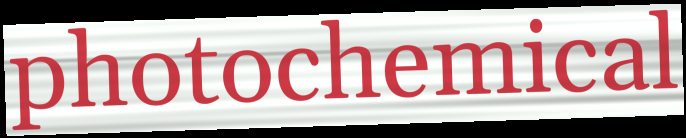
photochemical